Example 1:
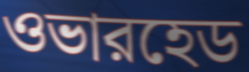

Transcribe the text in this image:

ওভারহেড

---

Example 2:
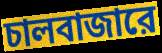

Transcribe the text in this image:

চালবাজারে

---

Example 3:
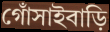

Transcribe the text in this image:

গোঁসাইবাড়ি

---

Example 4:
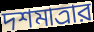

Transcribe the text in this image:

দশমাত্রার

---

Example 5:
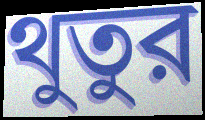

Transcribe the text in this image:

থুতুর